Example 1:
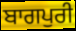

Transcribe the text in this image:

ਬਾਗਪੁਰੀ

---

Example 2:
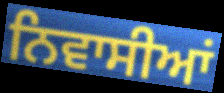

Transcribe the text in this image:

ਨਿਵਾਸੀਆਂ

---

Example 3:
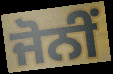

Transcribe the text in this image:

ਜੋਨੀਂ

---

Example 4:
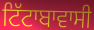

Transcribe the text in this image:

ਟਿੱਟਾਬਾਵਾਸੀ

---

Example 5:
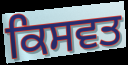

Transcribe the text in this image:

ਕਿਸਵਤ